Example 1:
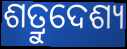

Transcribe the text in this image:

ଶତ୍ରୁଦେଶ୍ୟ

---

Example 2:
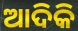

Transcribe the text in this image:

ଆଦିକି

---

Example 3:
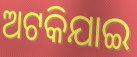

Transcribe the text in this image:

ଅଟକିଯାଇ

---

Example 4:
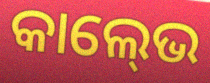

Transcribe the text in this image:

କାଲ୍‍ଭେ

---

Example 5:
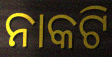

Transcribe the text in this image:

ନାକଟି